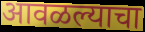
आवळल्याचा